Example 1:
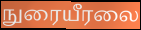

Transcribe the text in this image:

நுரையீரலை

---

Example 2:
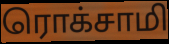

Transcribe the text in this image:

ரொக்சாமி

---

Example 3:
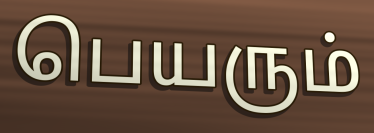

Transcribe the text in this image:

பெயரும்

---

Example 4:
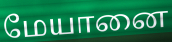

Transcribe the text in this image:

மேயானை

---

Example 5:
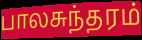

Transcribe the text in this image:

பாலசுந்தரம்